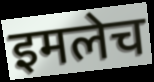
इमलेच